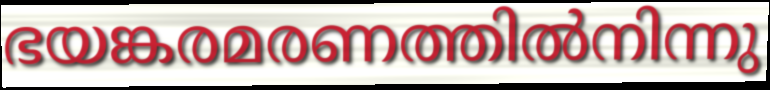
ഭയങ്കരമരണത്തിൽനിന്നു